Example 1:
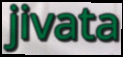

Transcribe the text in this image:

jivata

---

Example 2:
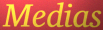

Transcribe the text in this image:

Medias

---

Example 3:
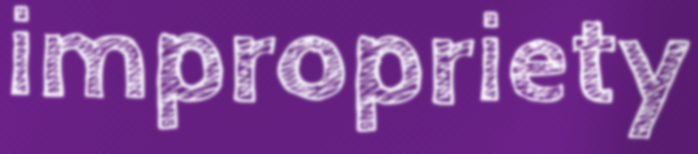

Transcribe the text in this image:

impropriety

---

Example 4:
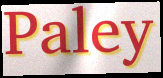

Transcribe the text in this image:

Paley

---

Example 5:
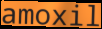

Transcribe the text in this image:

amoxil